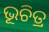
ଭୂଚିତ୍ର